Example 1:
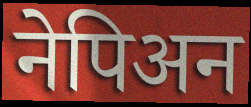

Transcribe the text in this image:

नेपिअन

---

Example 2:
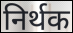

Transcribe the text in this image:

निर्थक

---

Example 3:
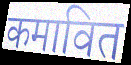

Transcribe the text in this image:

कमावित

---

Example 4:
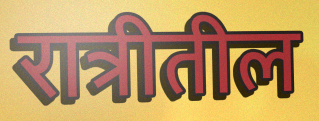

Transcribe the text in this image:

रात्रीतील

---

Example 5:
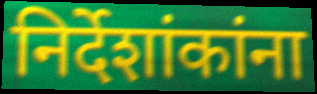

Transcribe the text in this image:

निर्देशांकांना